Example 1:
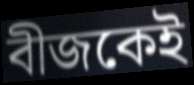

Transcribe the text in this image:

বীজকেই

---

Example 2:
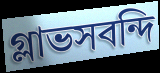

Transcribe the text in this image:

গ্লাভসবন্দি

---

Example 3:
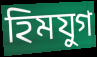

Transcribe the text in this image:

হিমযুগ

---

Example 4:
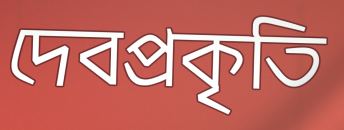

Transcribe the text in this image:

দেবপ্রকৃতি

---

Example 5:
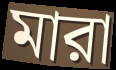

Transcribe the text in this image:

মারা